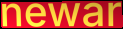
newar